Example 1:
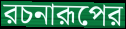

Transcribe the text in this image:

রচনারূপের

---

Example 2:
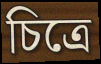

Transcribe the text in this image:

চিত্রে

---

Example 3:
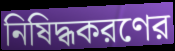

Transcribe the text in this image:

নিষিদ্ধকরণের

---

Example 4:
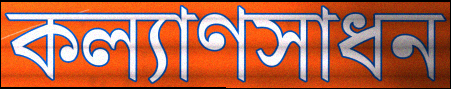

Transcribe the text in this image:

কল্যাণসাধন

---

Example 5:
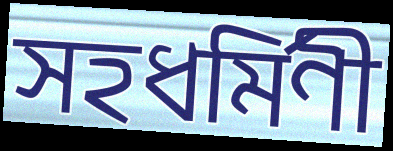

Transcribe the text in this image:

সহধর্মিণী